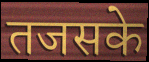
तजसके